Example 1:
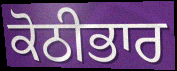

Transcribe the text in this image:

ਕੋਠੀਭਾਰ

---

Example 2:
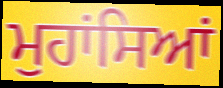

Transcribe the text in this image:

ਮੁਹਾਂਸਿਆਂ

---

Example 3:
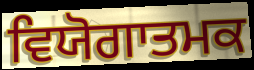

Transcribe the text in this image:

ਵਿਯੋਗਾਤਮਕ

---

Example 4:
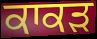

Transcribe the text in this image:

ਕਾਕੜ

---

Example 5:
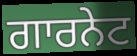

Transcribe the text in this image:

ਗਾਰਨੇਟ